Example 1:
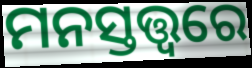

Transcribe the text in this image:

ମନସ୍ତତ୍ତ୍ଵରେ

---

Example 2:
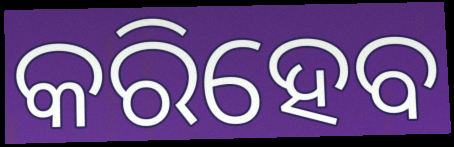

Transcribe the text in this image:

କରିହେବ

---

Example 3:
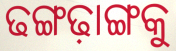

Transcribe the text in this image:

ଢଙ୍ଗଢ଼ାଙ୍ଗକୁ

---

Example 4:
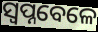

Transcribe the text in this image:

ସ୍ଵପ୍ନବେଳେ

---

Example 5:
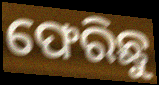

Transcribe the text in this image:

ଫେରିଛୁ